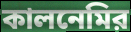
কালনেমির